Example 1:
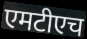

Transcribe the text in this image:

एमटीएच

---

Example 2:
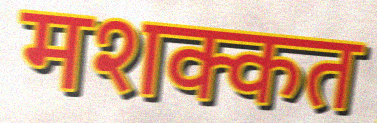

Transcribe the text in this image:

मशक्कत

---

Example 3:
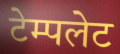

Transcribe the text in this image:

टेम्पलेट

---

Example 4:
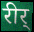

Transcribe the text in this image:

रीर्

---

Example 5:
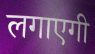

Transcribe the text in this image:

लगाएगी